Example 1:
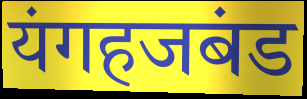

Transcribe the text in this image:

यंगहजबंड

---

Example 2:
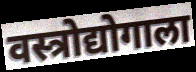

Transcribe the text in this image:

वस्त्रोद्योगाला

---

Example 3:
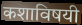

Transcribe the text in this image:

कशाविषयी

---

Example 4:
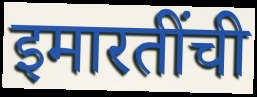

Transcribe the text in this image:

इमारतींची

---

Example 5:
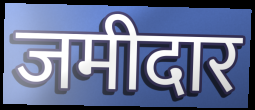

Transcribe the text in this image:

जमीदार